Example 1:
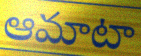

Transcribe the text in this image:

ఆమాటా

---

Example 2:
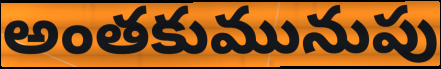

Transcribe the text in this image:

అంతకుమునుపు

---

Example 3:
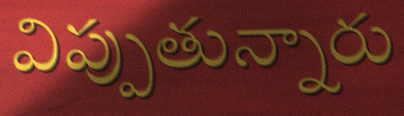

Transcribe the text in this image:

విప్పుతున్నారు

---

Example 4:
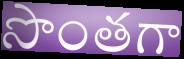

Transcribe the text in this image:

సొంతగా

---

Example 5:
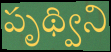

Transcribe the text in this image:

పృథ్విని